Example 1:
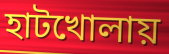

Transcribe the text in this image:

হাটখোলায়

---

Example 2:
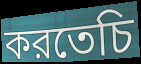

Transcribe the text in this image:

করতেচি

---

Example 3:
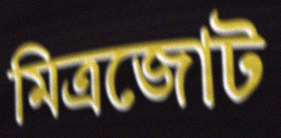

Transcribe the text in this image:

মিত্রজোট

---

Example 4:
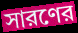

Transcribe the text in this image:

সারণের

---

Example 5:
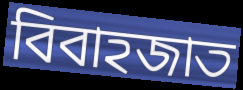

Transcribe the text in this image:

বিবাহজাত